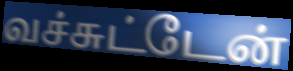
வச்சுட்டேன்